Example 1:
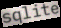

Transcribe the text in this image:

sqlite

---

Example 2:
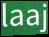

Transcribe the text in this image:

laaj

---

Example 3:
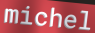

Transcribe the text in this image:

michel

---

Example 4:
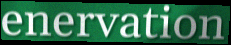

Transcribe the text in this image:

enervation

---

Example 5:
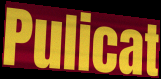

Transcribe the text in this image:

Pulicat